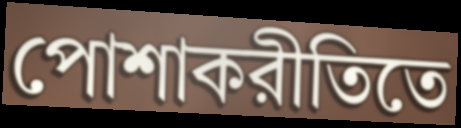
পোশাকরীতিতে